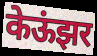
केऊंझर